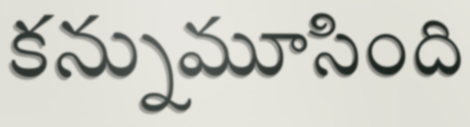
కన్నుమూసింది